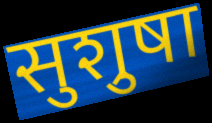
सुश्रुषा